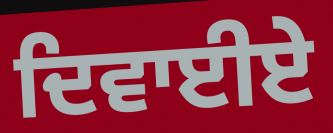
ਦਿਵਾਈਏ